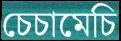
চেচামেচি